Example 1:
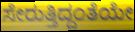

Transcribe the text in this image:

ಸೇರುತ್ತಿದ್ದಂತೆಯೇ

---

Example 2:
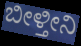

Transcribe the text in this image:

ಬೀಳ್ತೀನಿ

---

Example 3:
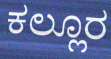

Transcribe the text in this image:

ಕಲ್ಲೂರ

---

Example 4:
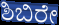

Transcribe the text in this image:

ಶಿಬಿರೇ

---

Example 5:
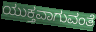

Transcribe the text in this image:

ಯುಕ್ತವಾಗುವಂತೆ